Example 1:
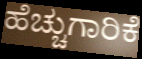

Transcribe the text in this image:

ಹೆಚ್ಚುಗಾರಿಕೆ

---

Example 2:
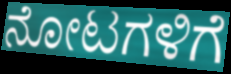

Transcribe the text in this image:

ನೋಟಗಳಿಗೆ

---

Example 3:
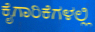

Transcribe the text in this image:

ಕೈಗಾರಿಕೆಗಳಲ್ಲಿ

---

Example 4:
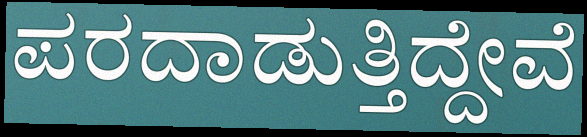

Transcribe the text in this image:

ಪರದಾಡುತ್ತಿದ್ದೇವೆ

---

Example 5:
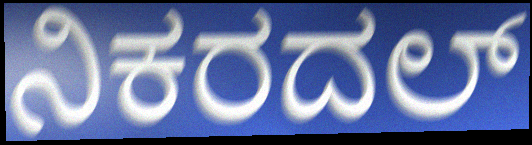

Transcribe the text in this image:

ನಿಕರದಲ್